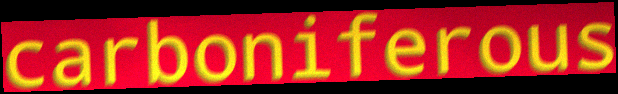
carboniferous